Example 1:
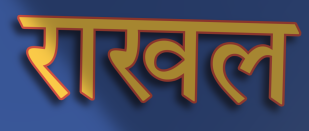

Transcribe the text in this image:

राखल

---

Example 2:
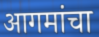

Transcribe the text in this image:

आगमांचा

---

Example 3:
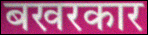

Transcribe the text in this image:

बखरकार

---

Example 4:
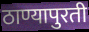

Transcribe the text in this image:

ठाण्यापुरती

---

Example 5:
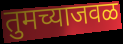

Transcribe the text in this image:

तुमच्याजवळ